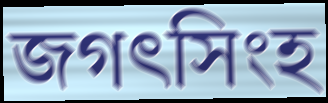
জগৎসিংহ